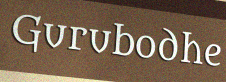
Gurubodhe